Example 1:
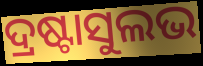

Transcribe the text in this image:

ଦ୍ରଷ୍ଟାସୁଲଭ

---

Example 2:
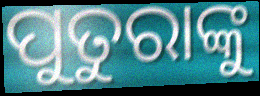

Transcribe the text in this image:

ପୁତୁରାଙ୍କୁ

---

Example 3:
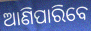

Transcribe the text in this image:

ଆଣିପାରିବେ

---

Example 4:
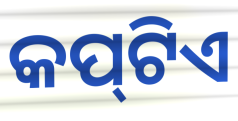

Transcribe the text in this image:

କପ୍‌ଟିଏ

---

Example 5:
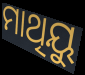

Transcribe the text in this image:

ମାଥିୟୁ